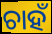
ଚାହଁ